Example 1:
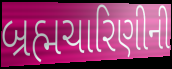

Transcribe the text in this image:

બ્રહ્મચારિણીની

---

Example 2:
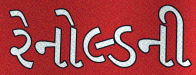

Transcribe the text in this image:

રેનોલ્ડની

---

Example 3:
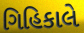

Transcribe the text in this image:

ગિહિકાલે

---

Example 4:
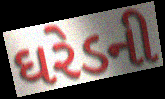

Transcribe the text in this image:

ઘરેડની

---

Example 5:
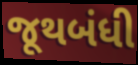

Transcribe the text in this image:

જૂથબંધી